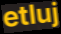
etluj